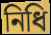
নিধি